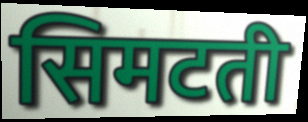
सिमटती